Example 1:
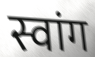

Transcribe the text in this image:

स्‍वांग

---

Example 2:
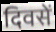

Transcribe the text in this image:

दिवसें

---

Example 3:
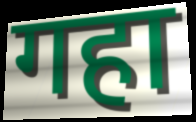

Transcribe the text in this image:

गहा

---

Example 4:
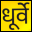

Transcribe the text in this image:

धूर्वे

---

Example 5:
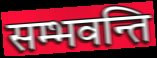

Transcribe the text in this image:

सम्भवन्ति